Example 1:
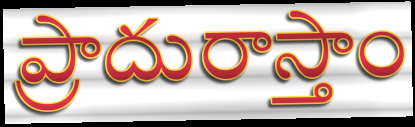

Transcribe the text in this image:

ప్రాదురాస్తాం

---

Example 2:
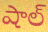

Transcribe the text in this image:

షాల్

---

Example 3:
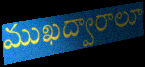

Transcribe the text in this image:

ముఖద్వారాలూ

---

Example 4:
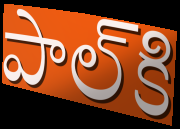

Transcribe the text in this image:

పాల్‌కి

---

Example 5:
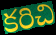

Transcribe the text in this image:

కరిచి